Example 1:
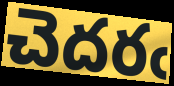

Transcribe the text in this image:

చెదరఁ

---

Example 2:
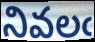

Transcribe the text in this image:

నివలఁ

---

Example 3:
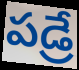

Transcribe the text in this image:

పడ్రే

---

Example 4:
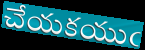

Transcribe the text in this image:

చేయకయుఁ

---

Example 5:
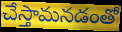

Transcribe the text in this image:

చేస్తామనడంతో